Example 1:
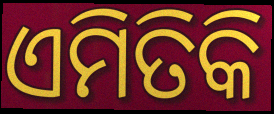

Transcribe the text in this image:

ଏମିତିକି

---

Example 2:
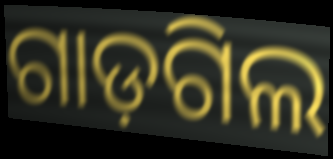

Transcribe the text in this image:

ଗାଡ଼ଗିଲ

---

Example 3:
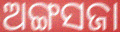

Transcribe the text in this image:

ଅଙ୍ଗସଜା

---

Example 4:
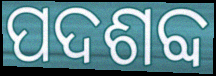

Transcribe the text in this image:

ପଦଶବ୍ଦ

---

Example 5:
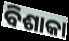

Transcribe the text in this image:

ବିଶାକା